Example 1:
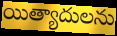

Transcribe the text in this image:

యిత్యాదులను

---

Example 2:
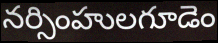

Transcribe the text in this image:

నర్సింహులగూడెం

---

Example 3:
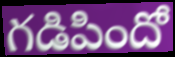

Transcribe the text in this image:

గడిపిందో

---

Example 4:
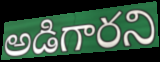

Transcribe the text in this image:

అడిగారని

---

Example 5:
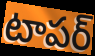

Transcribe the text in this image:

టాపర్